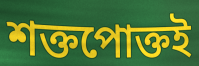
শক্তপোক্তই